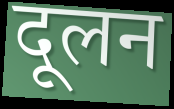
दूलन